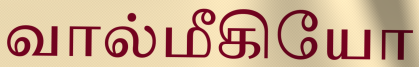
வால்மீகியோ